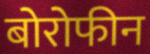
बोरोफीन